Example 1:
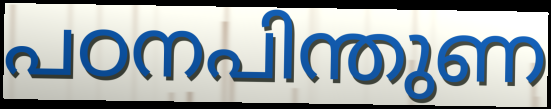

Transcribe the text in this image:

പഠനപിന്തുണ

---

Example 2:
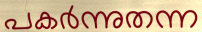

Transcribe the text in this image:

പകർന്നുതന്ന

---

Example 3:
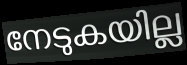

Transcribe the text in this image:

നേടുകയില്ല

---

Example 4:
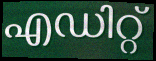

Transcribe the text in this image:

എഡിറ്റ്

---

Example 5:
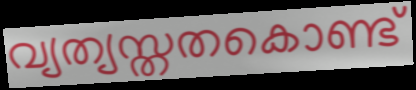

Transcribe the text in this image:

വ്യത്യസ്തതകൊണ്ട്